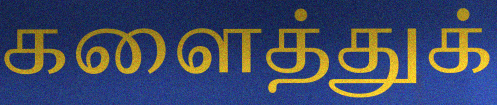
களைத்துக்